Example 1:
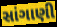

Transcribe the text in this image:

સાંગાણી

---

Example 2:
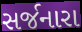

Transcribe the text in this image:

સર્જનારા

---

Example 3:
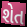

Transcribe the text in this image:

શેત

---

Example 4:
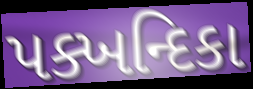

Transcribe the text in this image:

પક્ખન્દિકા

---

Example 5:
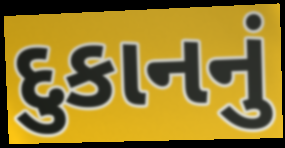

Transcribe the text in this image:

દુકાનનું